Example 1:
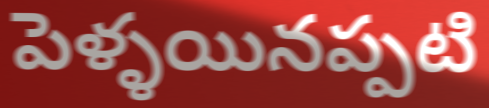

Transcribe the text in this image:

పెళ్ళయినప్పటి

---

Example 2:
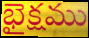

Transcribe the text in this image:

భైక్షము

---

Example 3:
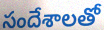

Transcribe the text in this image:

సందేశాలతో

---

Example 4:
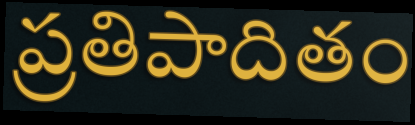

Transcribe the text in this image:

ప్రతిపాదితం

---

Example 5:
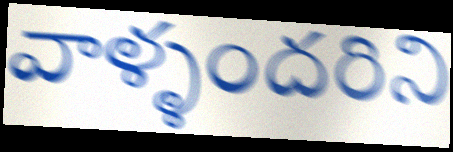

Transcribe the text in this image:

వాళ్ళందరిని